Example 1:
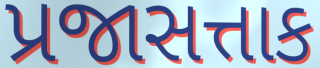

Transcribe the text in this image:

પ્રજાસત્તાક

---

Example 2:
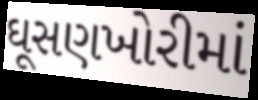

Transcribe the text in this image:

ઘૂસણખોરીમાં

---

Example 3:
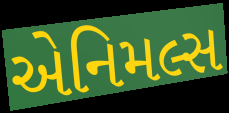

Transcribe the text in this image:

એનિમલ્સ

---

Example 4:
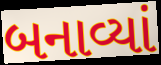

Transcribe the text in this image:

બનાવ્યાં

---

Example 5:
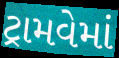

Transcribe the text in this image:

ટ્રામવેમાં